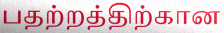
பதற்றத்திற்கான